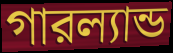
গারল্যান্ড